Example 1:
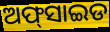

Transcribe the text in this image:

ଅଫ୍‍ସାଇଡ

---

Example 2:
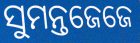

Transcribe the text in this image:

ସୁମନ୍ତଜେଜେ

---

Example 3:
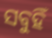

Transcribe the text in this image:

ସବୁହିଁ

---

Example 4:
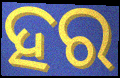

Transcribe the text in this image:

ହର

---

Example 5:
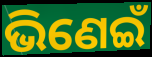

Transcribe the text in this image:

ଭିଣେଇଁ